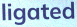
ligated